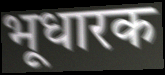
भूधारक